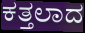
ಕತ್ತಲಾದ